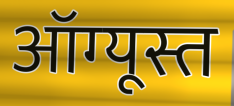
ऑग्यूस्त